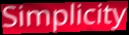
Simplicity